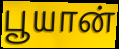
பூயான்